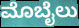
ಮೊಬೈಲು